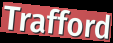
Trafford